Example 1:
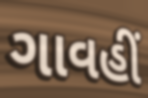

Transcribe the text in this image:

ગાવહીં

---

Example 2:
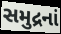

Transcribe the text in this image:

સમુદ્રનાં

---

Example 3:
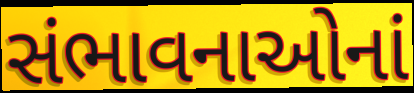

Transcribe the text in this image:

સંભાવનાઓનાં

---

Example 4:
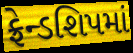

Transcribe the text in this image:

ફ્રેન્ડશિપમાં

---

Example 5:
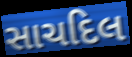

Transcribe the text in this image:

સાચદિલ